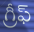
గ్రీఫ్